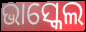
ଭାସ୍କେଲ